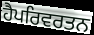
ਹੈਪਰਿਵਰਤਨ